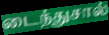
டைந்துசால்